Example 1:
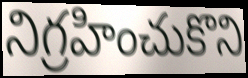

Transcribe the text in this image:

నిగ్రహించుకొని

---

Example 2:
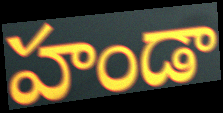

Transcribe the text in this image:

హండా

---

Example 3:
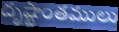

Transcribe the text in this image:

దృష్టాంతములు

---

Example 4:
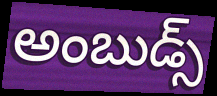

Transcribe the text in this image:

అంబుడ్స్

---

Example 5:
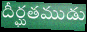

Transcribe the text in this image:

దీర్ఘతముడు